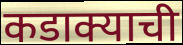
कडाक्याची